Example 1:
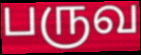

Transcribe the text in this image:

பருவ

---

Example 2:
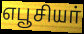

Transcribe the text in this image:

எபூசியர்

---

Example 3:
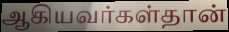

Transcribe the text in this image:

ஆகியவர்கள்தான்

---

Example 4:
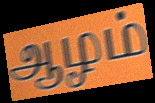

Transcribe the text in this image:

ஆழம்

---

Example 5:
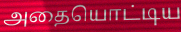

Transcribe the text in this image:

அதையொட்டிய